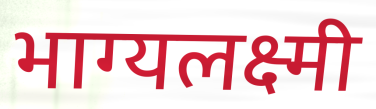
भाग्यलक्ष्मी